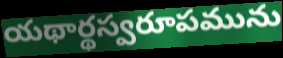
యథార్థస్వరూపమును